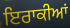
ਇਰਾਕੀਆਂ